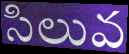
సిలువ